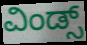
ವಿಂಡ್ಸ್